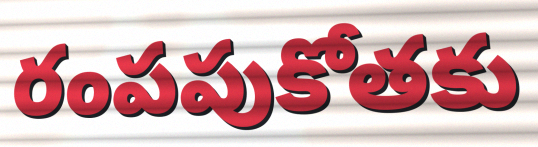
రంపపుకోతకు